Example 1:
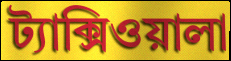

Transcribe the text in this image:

ট্যাক্সিওয়ালা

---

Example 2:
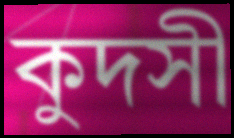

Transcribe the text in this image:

কুদসী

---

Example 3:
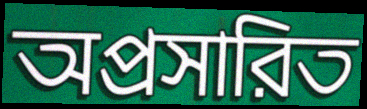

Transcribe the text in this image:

অপ্রসারিত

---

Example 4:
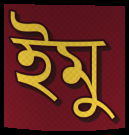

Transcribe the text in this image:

ইমু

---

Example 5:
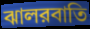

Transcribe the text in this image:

ঝালরবাতি